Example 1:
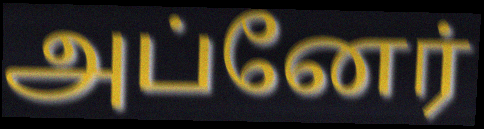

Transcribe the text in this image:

அப்னேர்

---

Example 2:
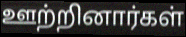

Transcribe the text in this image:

ஊற்றினார்கள்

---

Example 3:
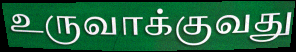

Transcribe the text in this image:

உருவாக்குவது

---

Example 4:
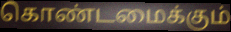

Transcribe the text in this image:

கொண்டமைக்கும்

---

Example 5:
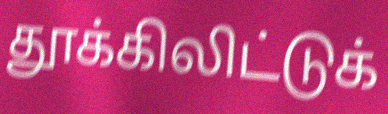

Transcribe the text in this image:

தூக்கிலிட்டுக்